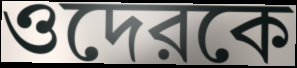
ওদেরকে